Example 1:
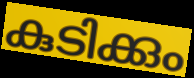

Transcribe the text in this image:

കുടിക്കും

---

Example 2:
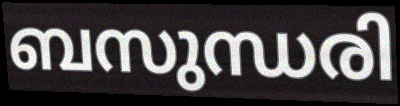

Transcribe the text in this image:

ബസുന്ധരി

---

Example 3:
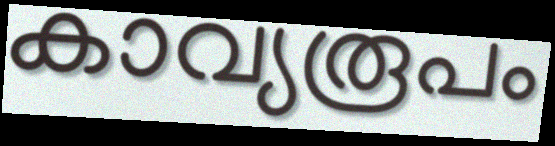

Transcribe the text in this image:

കാവ്യരൂപം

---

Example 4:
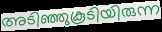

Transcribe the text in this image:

അടിഞ്ഞുകൂടിയിരുന്ന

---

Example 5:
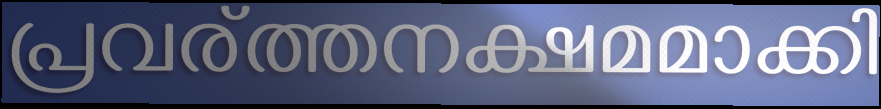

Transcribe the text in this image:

പ്രവര്ത്തനക്ഷമമാക്കി